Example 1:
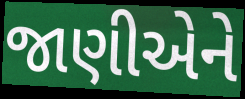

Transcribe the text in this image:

જાણીએને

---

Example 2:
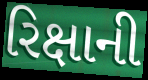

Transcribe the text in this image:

રિક્ષાની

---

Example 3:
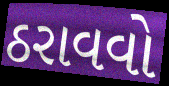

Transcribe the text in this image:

ઠરાવવો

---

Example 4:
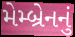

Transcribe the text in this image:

મેમ્બ્રેનનું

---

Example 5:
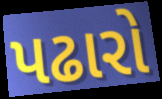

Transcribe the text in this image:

પઢારો